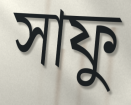
সাফু